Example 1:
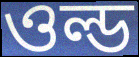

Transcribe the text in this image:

ওল্ড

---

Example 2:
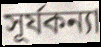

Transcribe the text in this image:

সূর্যকন্যা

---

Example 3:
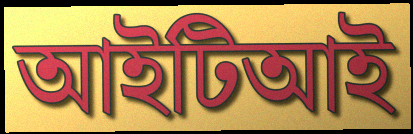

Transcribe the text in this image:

আইটিআই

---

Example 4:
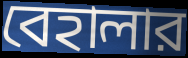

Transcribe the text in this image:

বেহালার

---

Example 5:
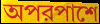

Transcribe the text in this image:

অপরপাশে